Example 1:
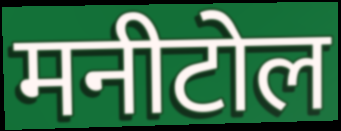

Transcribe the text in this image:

मनीटोल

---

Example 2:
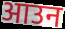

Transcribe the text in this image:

आउन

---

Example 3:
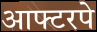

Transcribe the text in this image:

आफ्टरपे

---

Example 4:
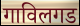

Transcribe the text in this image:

गाविलगड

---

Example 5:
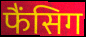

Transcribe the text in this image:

फैंसिग